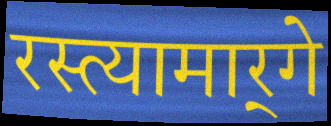
रस्त्यामार्गे